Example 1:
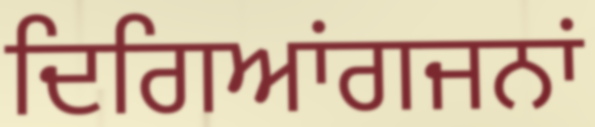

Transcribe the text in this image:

ਦਿਗਿਆਂਗਜਨਾਂ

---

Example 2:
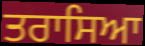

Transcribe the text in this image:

ਤਰਾਸਿਆ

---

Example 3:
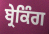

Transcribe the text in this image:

ਬ੍ਰੇਕਿੰਗ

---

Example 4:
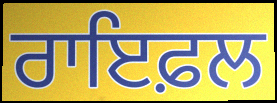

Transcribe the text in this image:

ਰਾਇਫ਼ਲ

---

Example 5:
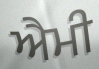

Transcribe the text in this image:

ਐਮੀ